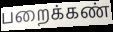
பறைக்கண்